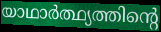
യാഥാർത്ഥ്യത്തിന്റെ